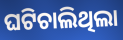
ଘଟିଚାଲିଥିଲା